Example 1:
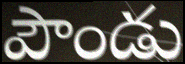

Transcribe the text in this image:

పౌండు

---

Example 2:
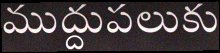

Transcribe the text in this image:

ముద్దుపలుకు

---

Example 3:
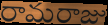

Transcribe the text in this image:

రామరాజు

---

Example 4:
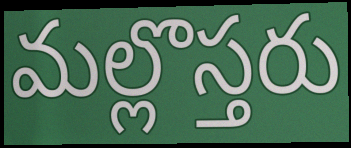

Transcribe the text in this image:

మల్లొస్తరు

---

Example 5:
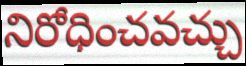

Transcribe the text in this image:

నిరోధించవచ్చు